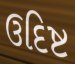
ઉદિષ્ટ